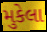
મુકેલા